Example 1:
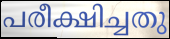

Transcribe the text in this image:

പരീക്ഷിച്ചതു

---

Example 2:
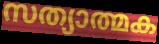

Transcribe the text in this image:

സത്യാത്മക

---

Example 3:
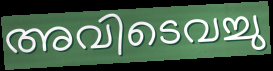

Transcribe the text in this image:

അവിടെവച്ചു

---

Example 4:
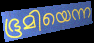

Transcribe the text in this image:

ഭൂമിയെന്ന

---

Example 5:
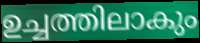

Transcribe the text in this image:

ഉച്ചത്തിലാകും